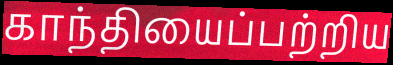
காந்தியைப்பற்றிய